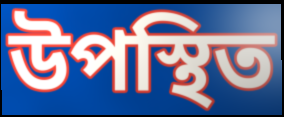
উপস্থিত